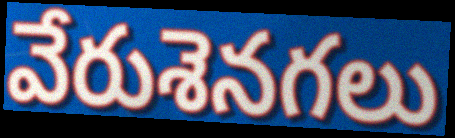
వేరుశెనగలు